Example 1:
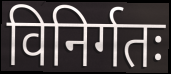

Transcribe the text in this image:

विनिर्गतः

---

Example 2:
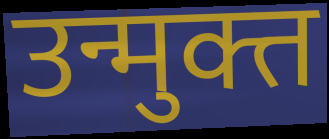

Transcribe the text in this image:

उन्मुक्त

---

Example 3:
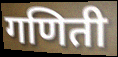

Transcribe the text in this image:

गणिती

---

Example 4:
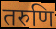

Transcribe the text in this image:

तरुणि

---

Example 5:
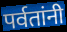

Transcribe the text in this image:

पर्वतांनी